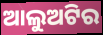
ଆଲୁଅଟିର